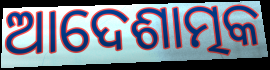
ଆଦେଶାତ୍ମକ